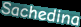
Sachedina